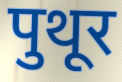
पुथूर